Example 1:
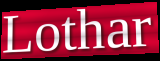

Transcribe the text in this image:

Lothar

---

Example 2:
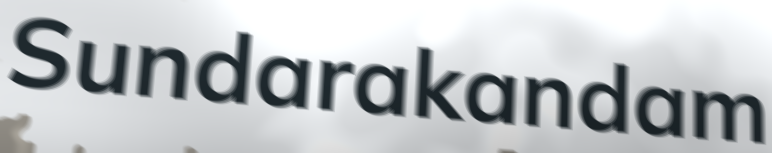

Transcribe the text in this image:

Sundarakandam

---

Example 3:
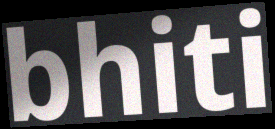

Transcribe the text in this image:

bhiti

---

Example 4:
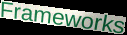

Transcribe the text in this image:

Frameworks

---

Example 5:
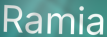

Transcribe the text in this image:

Ramia